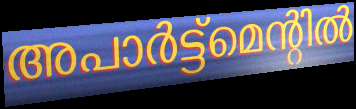
അപാർട്ട്മെന്റിൽ